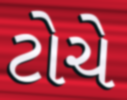
ટોચે